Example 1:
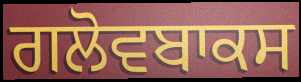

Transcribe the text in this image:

ਗਲੋਵਬਾਕਸ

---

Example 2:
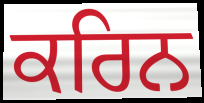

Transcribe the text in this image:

ਕਰਿਨ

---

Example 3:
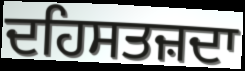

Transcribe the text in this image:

ਦਹਿਸਤਜ਼ਦਾ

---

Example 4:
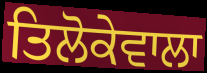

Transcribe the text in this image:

ਤਿਲੋਕੇਵਾਲਾ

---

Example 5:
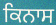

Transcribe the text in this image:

ਕਿਨਾਸ